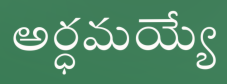
అర్ధమయ్యే